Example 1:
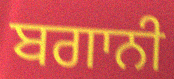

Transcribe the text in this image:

ਬਗਾਨੀ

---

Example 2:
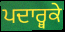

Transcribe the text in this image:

ਪਦਾਰ੍ਥਕੇ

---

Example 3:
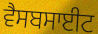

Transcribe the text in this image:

ਵੈਸਬਸਾਈਟ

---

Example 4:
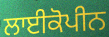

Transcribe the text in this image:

ਲਾਈਕੋਪੀਨ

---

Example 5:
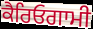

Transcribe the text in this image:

ਕੈਰਿਓਗਾਮੀ